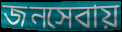
জনসেবায়